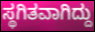
ಸ್ಥಗಿತವಾಗಿದ್ದು